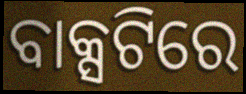
ବାକ୍ସଟିରେ